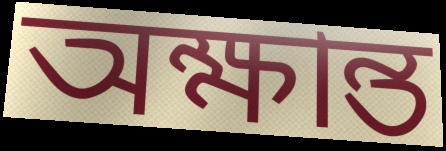
অক্ষান্ত